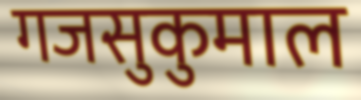
गजसुकुमाल